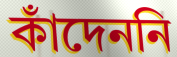
কাঁদেননি